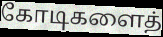
கோடிகளைத்